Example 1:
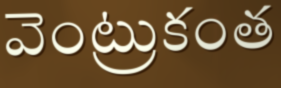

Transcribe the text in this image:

వెంట్రుకంత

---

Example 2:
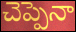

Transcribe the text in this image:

చెప్పెనా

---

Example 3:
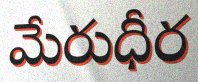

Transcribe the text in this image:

మేరుధీర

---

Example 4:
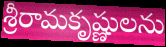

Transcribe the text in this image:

శ్రీరామకృష్ణులను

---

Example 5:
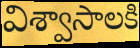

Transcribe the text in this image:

విశ్వాసాలకి